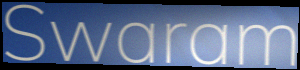
Swaram